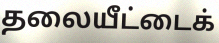
தலையீட்டைக்